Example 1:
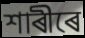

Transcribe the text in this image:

শাৰীৰে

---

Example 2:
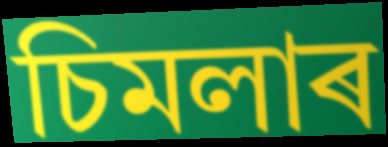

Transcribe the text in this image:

চিমলাৰ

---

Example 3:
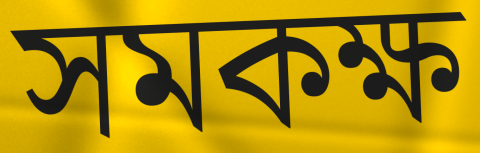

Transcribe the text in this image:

সমকক্ষ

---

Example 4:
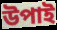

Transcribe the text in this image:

উপাই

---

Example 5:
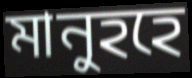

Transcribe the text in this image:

মানুহহে